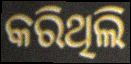
କରିଥିଲି